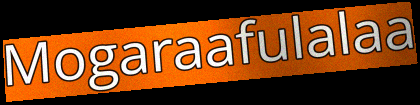
Mogaraafulalaa